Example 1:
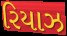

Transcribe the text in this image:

રિયાઝ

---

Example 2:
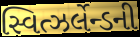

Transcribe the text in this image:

સ્વિત્ઝર્લેન્ડની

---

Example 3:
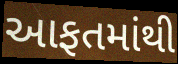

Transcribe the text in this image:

આફતમાંથી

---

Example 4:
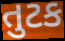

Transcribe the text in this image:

તુટક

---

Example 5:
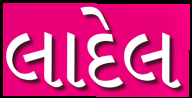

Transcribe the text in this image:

લાદેલ